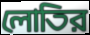
লোতির